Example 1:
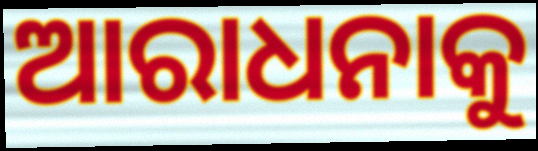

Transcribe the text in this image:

ଆରାଧନାକୁ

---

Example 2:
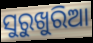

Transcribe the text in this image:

ସୁରୁଖୁରିଆ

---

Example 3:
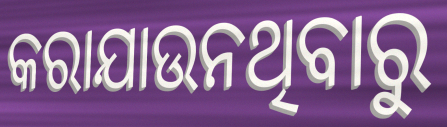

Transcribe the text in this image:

କରାଯାଉନଥିବାରୁ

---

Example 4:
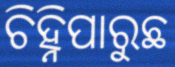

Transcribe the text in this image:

ଚିହ୍ନିପାରୁଛ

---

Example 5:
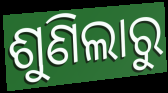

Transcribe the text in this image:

ଶୁଣିଲାରୁ